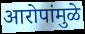
आरोपांमुळे